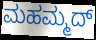
ಮಹಮ್ಮದ್